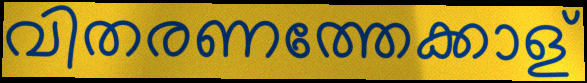
വിതരണത്തേക്കാള്